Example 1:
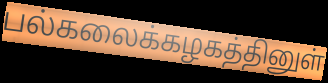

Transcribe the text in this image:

பல்கலைக்கழகத்தினுள்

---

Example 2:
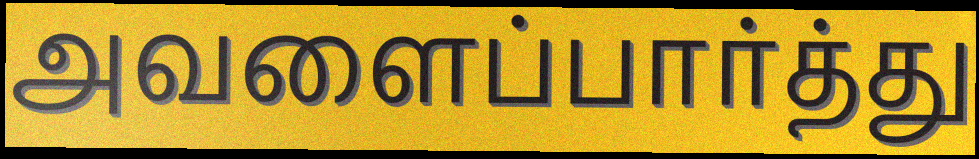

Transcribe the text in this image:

அவளைப்பார்த்து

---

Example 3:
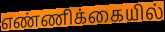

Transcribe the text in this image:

எண்ணிக்கையில்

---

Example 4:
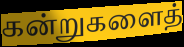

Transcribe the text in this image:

கன்றுகளைத்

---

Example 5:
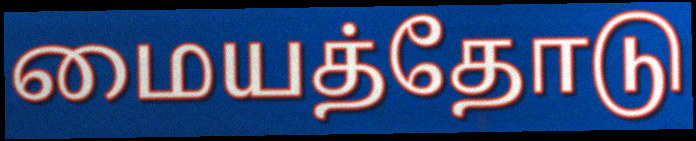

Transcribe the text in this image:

மையத்தோடு